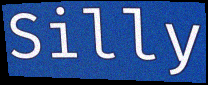
Silly